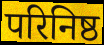
परिनिष्ठ